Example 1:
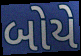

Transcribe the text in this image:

બોયે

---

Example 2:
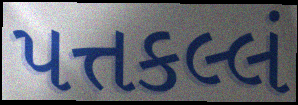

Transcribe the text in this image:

પત્તકલ્લં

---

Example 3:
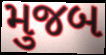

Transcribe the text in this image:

મુજબ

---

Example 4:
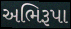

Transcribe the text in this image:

અભિરૂપા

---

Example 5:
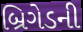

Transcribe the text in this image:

બ્રિગેડની